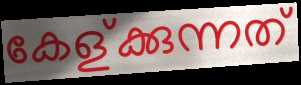
കേള്ക്കുന്നത്